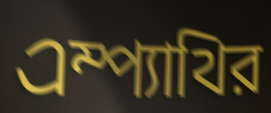
এম্প্যাথির